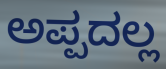
ಅಪ್ಪದಲ್ಲ